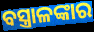
ବସ୍ତ୍ରାଳଙ୍କାର